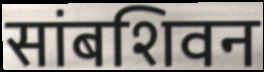
सांबशिवन